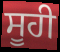
ਸੂਹੀ